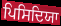
ਪਿਸਿਦਿਯਾ